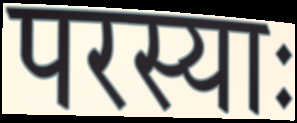
परस्याः